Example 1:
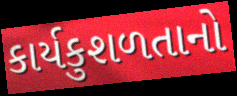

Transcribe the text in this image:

કાર્યકુશળતાનો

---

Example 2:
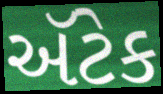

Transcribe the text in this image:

ઍટેક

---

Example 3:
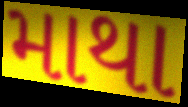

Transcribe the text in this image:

માથા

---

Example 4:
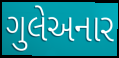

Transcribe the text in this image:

ગુલેઅનાર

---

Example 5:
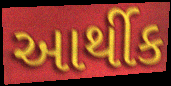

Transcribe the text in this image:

આર્થીક